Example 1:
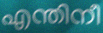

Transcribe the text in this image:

എന്തിനീ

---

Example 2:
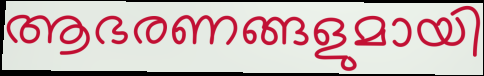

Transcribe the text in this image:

ആഭരണങ്ങളുമായി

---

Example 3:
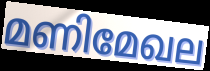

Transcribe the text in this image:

മണിമേഖല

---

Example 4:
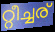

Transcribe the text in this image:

റ്റീച്ചര്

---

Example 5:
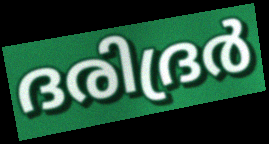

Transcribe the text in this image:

ദരിദ്രർ